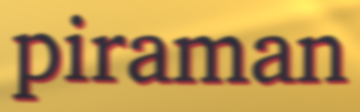
piraman